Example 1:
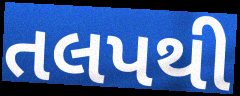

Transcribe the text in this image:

તલપથી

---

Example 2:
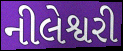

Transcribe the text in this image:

નીલેશ્વરી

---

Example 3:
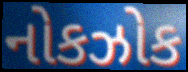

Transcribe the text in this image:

નોકઝોક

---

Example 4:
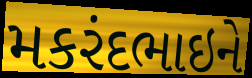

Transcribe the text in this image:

મકરંદભાઇને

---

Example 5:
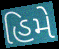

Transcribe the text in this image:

હિમે